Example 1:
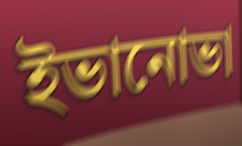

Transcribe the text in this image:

ইভানোভা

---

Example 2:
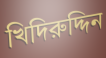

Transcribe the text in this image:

খিদিরুদ্দিন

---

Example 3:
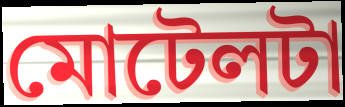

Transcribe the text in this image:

মোটেলটা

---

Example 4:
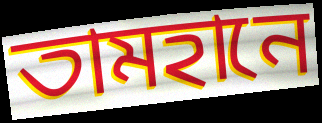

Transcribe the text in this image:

তামহানে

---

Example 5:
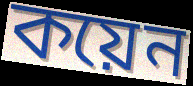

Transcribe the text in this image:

কয়েন